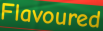
Flavoured